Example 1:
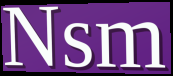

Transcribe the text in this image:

Nsm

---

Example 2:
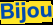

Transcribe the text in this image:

Bijou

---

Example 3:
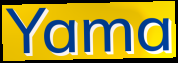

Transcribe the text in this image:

Yama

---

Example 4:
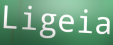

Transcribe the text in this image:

Ligeia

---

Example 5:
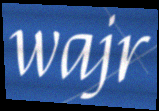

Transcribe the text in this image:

wajr